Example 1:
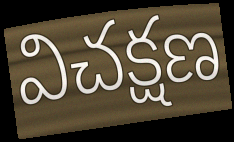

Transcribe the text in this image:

విచక్షణ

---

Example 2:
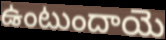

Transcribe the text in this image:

ఉంటుందాయె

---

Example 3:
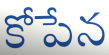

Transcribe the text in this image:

కోపేన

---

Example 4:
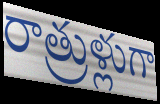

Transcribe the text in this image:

రాత్రుళ్లుగా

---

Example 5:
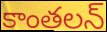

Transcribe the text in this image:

కాంతలన్